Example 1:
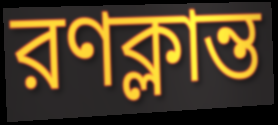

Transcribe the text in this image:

রণক্লান্ত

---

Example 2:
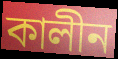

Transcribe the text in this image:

কালীন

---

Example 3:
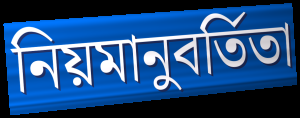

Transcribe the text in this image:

নিয়মানুবর্তিতা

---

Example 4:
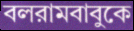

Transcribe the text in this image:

বলরামবাবুকে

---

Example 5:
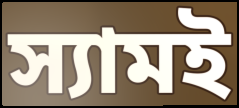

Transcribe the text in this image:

স্যামই